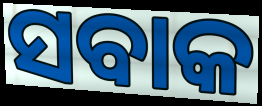
ସବାକ